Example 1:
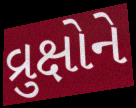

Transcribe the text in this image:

વ્રુક્ષોને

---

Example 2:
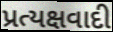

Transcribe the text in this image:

પ્રત્યક્ષવાદી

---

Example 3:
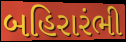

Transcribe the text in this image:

બહિરારંભી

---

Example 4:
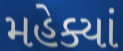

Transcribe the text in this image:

મહેક્યાં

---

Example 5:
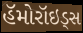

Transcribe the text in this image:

હૅમોરૉઇડ્સ